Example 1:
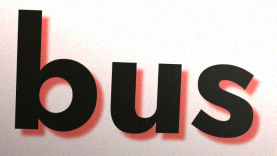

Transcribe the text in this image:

bus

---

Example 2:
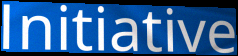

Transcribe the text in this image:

Initiative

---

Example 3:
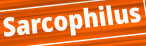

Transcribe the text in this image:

Sarcophilus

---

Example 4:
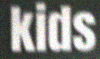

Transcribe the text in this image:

kids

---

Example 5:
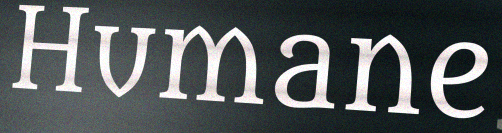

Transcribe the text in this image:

Humane